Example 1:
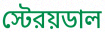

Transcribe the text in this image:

স্টেরয়ডাল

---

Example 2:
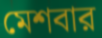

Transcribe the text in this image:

মেশবার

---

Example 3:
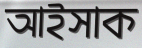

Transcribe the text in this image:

আইসাক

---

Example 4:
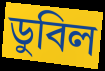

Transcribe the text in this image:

ডুবিল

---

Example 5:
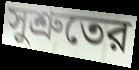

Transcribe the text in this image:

সুশ্রুতের